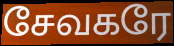
சேவகரே